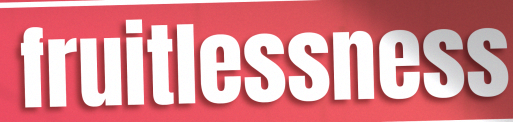
fruitlessness